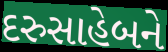
દરુસાહેબને